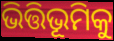
ଭିତ୍ତିଭୂମିକୁ